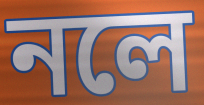
নলে